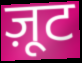
ज़ूट